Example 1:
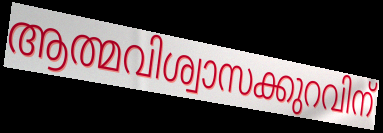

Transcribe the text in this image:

ആത്മവിശ്വാസക്കുറവിന്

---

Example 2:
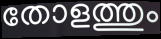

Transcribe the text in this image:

തോളത്തും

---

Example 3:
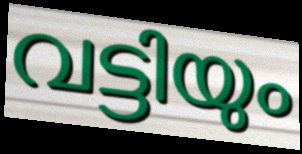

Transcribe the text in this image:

വട്ടിയും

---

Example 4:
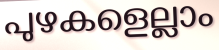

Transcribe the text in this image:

പുഴകളെല്ലാം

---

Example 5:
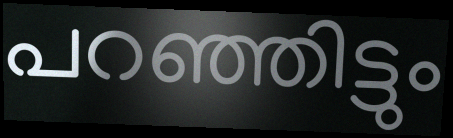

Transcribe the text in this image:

പറഞ്ഞിട്ടും